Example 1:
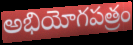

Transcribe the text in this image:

అభియోగపత్రం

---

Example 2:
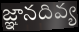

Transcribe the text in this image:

జ్ఞానదివ్య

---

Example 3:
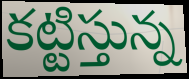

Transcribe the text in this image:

కట్టిస్తున్న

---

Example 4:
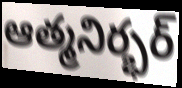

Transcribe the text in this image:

ఆత్మనిర్భర్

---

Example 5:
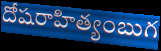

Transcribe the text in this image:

దోషరాహిత్యంబుగ